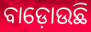
ବାଡ଼ୋଉଛି